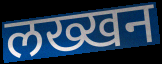
लख्खन